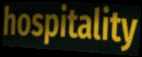
hospitality